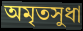
অমৃতসুধা